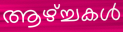
ആഴ്ച്ചകൾ